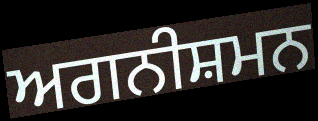
ਅਗਨੀਸ਼ਮਨ